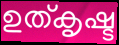
ഉത്കൃഷ്ട